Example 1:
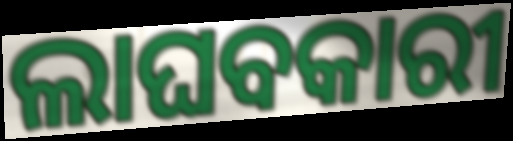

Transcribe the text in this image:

ଲାଘବକାରୀ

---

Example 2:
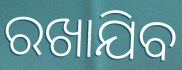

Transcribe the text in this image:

ରଖାଯିବ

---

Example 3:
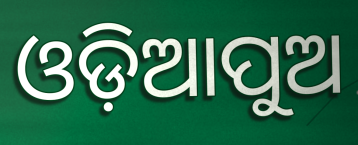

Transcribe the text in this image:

ଓଡ଼ିଆପୁଅ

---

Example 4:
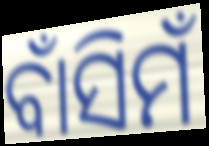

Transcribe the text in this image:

ବାଁସିମଁ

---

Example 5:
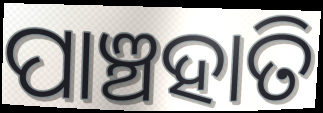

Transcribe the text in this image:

ପାଞ୍ଚହାତି